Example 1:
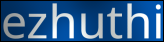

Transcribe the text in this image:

ezhuthi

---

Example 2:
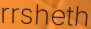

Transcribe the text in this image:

rrsheth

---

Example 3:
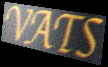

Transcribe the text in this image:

VATS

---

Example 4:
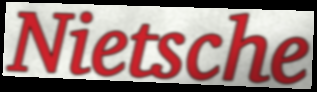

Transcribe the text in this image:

Nietsche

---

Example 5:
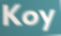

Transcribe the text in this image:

Koy